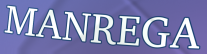
MANREGA